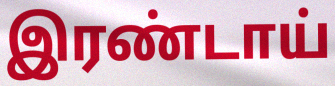
இரண்டாய்